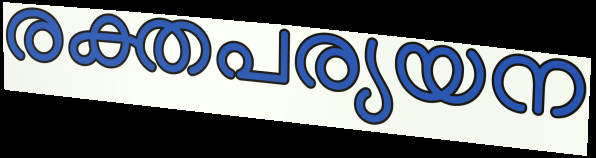
രക്തപര്യയന